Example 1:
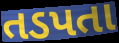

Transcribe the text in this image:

તડપતા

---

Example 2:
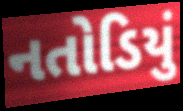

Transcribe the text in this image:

નતોડિયું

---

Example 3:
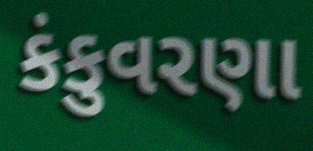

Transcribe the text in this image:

કંકુવરણા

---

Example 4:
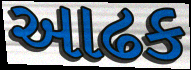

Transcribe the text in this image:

આઢક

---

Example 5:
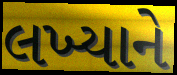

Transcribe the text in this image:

લખ્યાને